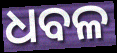
ଧବଳ